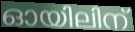
ഓയിലിന്